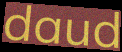
daud